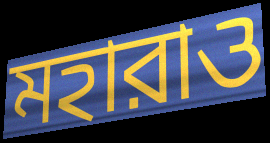
মহারাও